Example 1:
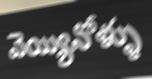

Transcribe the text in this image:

వెయ్యినోళ్ళు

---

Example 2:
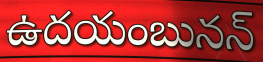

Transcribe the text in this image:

ఉదయంబునన్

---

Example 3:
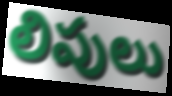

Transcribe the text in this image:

లిపులు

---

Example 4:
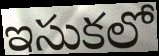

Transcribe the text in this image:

ఇసుకలో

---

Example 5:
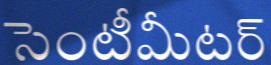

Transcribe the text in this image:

సెంటీమీటర్